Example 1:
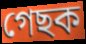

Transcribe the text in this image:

গেছক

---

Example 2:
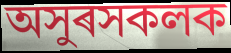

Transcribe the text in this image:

অসুৰসকলক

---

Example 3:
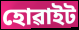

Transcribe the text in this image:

হোৱাইট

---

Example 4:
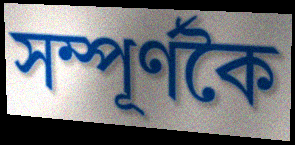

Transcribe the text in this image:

সম্পূৰ্ণকৈ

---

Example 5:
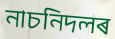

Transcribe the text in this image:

নাচনিদলৰ